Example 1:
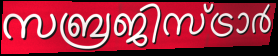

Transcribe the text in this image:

സബ്രജിസ്ട്രാർ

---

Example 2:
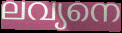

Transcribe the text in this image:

ലവ്യനെ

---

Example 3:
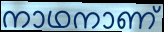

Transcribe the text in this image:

നാഥനാണ്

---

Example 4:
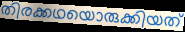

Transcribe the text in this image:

തിരക്കഥയൊരുക്കിയത്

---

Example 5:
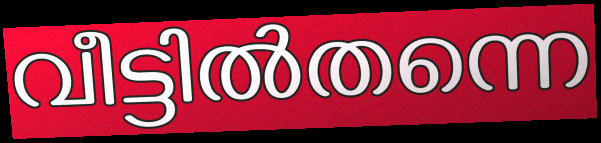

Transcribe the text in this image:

വീട്ടിൽതന്നെ